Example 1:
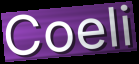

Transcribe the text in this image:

Coeli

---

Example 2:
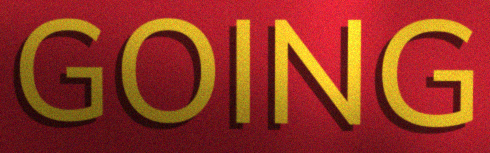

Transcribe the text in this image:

GOING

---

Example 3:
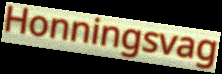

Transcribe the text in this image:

Honningsvag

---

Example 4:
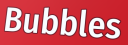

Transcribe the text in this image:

Bubbles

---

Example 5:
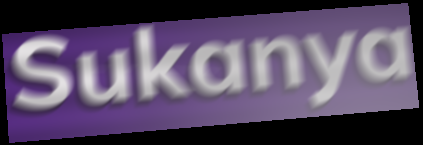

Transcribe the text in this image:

Sukanya